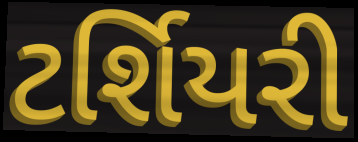
ટર્શિયરી